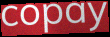
copay